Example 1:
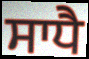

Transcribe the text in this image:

ਸਾਧੈ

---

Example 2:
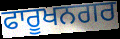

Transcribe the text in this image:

ਫਾਰੂਖਨਗਰ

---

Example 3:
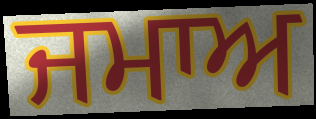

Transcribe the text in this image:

ਜਮਾਅ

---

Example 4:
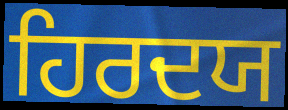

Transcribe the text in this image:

ਹਿਰਦਯ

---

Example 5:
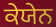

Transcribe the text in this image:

ਕੇਯੇਨ